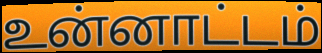
உன்னாட்டம்